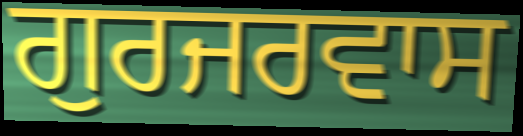
ਗੁਰਜਰਵਾਸ